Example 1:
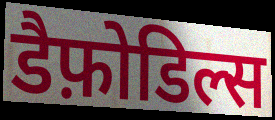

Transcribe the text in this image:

डैफ़ोडिल्स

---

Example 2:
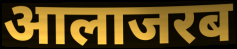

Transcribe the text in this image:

आलाजरब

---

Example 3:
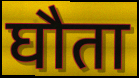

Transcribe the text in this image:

घौता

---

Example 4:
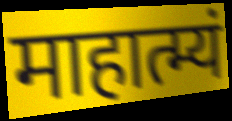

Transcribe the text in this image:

माहात्म्यं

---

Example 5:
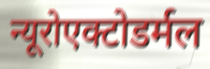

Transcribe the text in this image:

न्यूरोएक्टोडर्मल